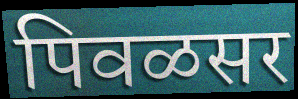
पिवळसर